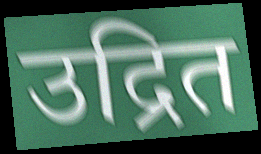
उद्रित